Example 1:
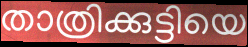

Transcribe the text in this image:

താത്രിക്കുട്ടിയെ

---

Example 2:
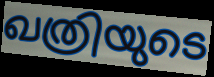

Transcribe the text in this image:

ഖത്രിയുടെ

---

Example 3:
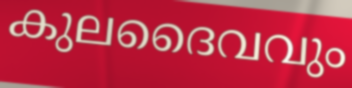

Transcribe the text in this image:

കുലദൈവവും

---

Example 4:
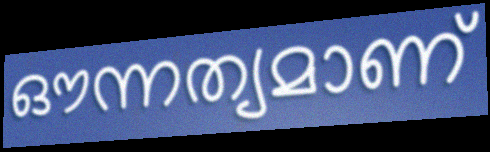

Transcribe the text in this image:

ഔന്നത്യമാണ്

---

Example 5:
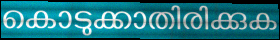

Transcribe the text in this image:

കൊടുക്കാതിരിക്കുക